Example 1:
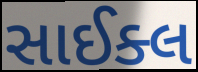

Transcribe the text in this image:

સાઈક્લ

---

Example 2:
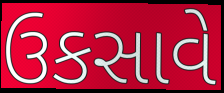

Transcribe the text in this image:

ઉકસાવે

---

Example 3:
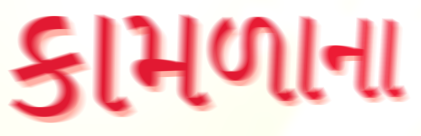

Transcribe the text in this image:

કામળાના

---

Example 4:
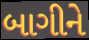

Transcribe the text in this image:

બાગીને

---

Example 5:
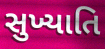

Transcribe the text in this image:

સુખ્યાતિ